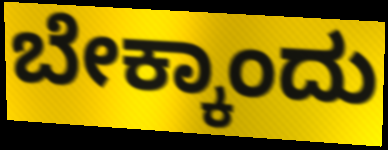
ಬೇಕ್ಕಾಂದು